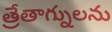
త్రేతాగ్నులను